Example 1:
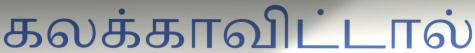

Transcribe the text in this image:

கலக்காவிட்டால்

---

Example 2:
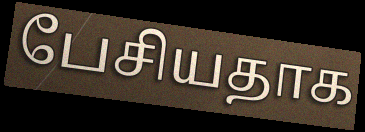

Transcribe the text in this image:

பேசியதாக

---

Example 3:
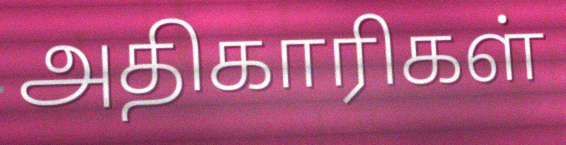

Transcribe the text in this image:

அதிகாரிகள்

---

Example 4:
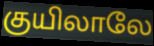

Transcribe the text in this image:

குயிலாலே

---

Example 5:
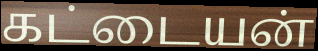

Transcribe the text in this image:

கட்டையன்